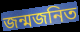
জন্মজনিত